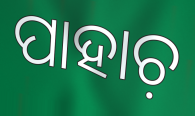
ପାହାଚ଼